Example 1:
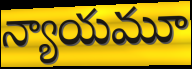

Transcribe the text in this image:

న్యాయమూ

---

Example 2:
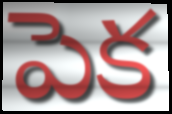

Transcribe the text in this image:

పెక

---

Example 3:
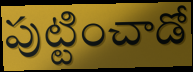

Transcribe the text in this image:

పుట్టించాడో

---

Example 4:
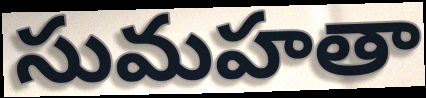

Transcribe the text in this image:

సుమహతా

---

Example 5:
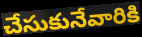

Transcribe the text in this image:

చేసుకునేవారికి